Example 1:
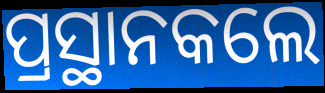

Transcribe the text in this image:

ପ୍ରସ୍ଥାନକଲେ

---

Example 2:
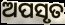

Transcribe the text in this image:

ଅପସୃତ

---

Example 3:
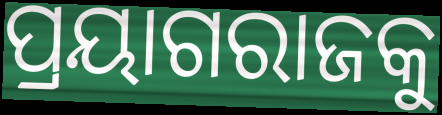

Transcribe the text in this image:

ପ୍ରୟାଗରାଜକୁ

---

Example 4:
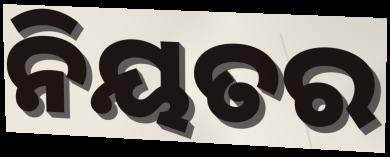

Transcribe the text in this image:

ନିୟତର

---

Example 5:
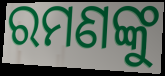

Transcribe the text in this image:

ରମଣଙ୍କୁ